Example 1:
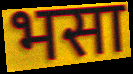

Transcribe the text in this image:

भसा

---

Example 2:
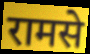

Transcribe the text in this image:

रामसे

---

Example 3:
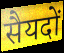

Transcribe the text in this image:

सैयदों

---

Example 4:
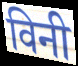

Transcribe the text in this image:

विनी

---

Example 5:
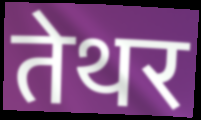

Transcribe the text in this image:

तेथर